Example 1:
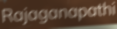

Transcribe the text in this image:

Rajaganapathi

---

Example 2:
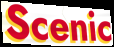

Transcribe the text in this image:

Scenic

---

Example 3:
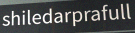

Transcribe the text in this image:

shiledarprafull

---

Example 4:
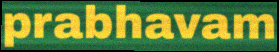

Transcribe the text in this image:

prabhavam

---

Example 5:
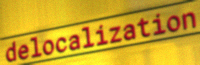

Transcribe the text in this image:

delocalization